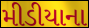
મીડીયાના